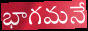
భాగమనే